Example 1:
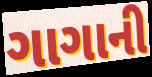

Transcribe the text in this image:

ગાગાની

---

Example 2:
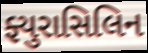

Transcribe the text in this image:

ફ્યુરાસિલિન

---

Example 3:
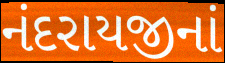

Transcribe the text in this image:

નંદરાયજીનાં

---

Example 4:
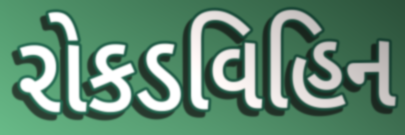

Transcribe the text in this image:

રોકડવિહિન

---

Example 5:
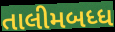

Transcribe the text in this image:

તાલીમબધ્ધ